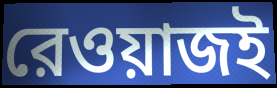
রেওয়াজই